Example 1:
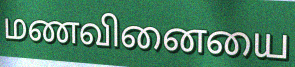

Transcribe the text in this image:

மணவினையை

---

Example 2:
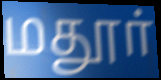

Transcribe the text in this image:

மதூர்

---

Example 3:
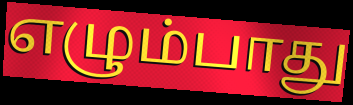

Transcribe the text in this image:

எழும்பாது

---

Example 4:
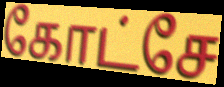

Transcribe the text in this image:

கோட்சே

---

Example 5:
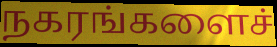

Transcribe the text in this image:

நகரங்களைச்